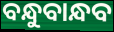
ବନ୍ଧୁବାନ୍ଧବ